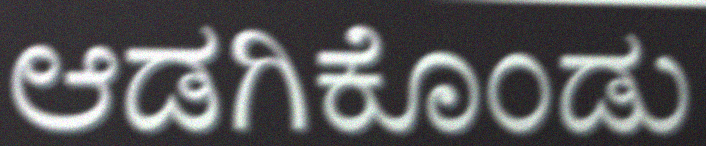
ಆಡಗಿಕೊಂಡು